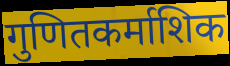
गुणितकर्माशिक